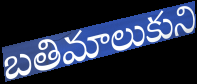
బతిమాలుకుని